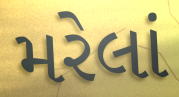
મરેલાં